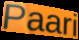
Paari